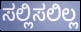
ಸಲ್ಲಿಸಲಿಲ್ಲ